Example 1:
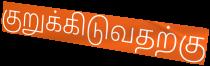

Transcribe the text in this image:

குறுக்கிடுவதற்கு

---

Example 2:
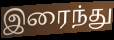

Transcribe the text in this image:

இரைந்து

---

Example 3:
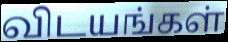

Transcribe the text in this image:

விடயங்கள்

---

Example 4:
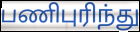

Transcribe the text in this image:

பணிபுரிந்து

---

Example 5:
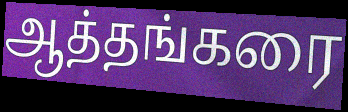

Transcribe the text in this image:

ஆத்தங்கரை